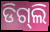
ଡିଗ୍‌ଲି